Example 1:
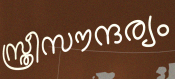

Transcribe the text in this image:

സ്ത്രീസൗന്ദര്യം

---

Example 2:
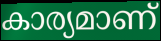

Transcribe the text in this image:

കാര്യമാണ്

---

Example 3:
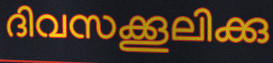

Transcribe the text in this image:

ദിവസക്കൂലിക്കു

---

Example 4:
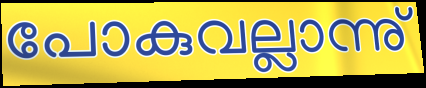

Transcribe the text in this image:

പോകുവല്ലാന്നു്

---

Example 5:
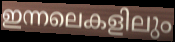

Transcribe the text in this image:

ഇന്നലെകളിലും